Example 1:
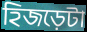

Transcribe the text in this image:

হিজড়েটা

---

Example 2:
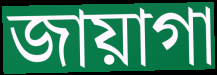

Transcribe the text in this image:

জায়াগা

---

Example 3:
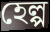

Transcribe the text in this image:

হেল্প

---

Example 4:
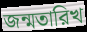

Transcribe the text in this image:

জন্মতারিখ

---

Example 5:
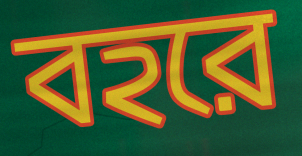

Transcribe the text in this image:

বহরে